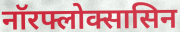
नॉरफ्लोक्सासिन